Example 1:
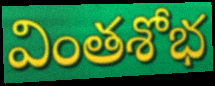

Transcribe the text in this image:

వింతశోభ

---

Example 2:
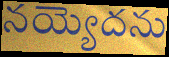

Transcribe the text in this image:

నయ్యెదను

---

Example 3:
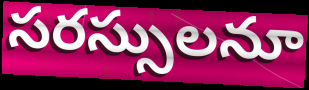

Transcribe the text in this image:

సరస్సులనూ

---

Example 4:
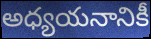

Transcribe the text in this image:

అధ్యయనానికీ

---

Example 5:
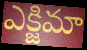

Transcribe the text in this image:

ఎక్జిమా